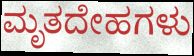
ಮೃತದೇಹಗಳು